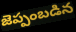
జెప్పంబడిన